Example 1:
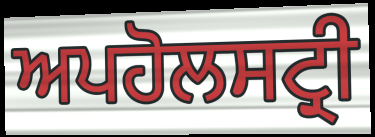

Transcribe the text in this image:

ਅਪਹੋਲਸਟ੍ਰੀ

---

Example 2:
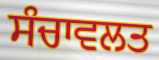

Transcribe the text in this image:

ਸੰਚਾਵਲਤ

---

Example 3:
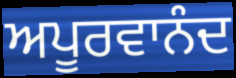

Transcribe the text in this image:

ਅਪੂਰਵਾਨੰਦ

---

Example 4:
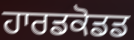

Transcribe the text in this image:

ਹਾਰਡਕੋਡਡ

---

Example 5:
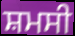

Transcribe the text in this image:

ਸ਼ਮਸੀ